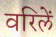
वरिलें